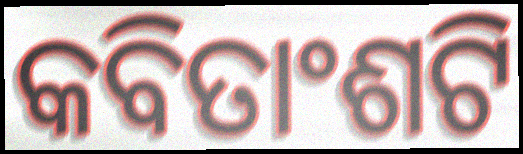
କବିତାଂଶଟି